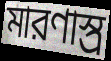
মারণাস্ত্র